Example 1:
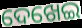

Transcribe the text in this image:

ଦେଖେଇ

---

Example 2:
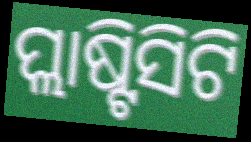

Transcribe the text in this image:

ପ୍ଲାଷ୍ଟିସିଟି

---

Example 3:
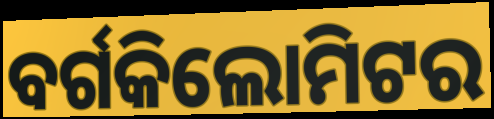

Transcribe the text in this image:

ବର୍ଗକିଲୋମିଟର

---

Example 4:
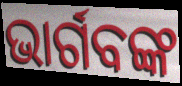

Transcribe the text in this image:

ଭାର୍ଗବଙ୍କ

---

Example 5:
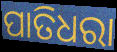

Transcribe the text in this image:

ପାତିଧରା